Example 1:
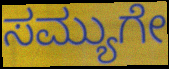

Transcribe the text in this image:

ಸಮ್ಯುಗೇ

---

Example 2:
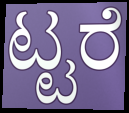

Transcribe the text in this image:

ಟ್ಟರೆ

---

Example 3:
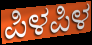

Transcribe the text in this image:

ಪಿಳಪಿಳ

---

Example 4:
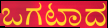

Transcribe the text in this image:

ಒಗಟಾದ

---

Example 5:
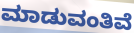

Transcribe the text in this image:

ಮಾಡುವಂತಿವೆ